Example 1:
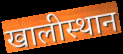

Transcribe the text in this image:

खालीस्थान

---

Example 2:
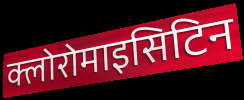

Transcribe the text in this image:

क्लोरोमाइसिटिन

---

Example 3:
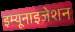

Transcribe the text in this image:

इम्यूनाइजेशन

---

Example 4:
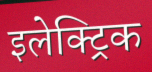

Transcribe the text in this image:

इलेक्ट्रिक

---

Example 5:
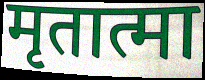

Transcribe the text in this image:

मृतात्मा